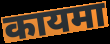
कायमा